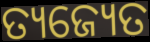
ତ୍ୟଜ୍ୟେତ